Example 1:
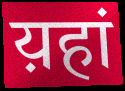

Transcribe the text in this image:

य़हां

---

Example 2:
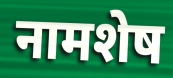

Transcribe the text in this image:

नामशेष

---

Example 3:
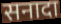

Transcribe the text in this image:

सनादा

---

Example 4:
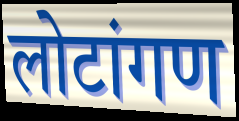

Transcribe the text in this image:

लोटांगण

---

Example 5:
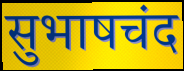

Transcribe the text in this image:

सुभाषचंद